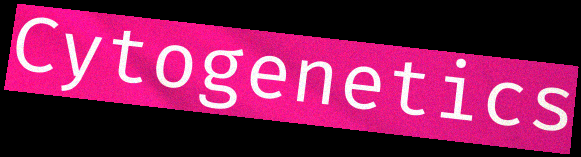
Cytogenetics